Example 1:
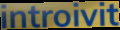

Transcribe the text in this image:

introivit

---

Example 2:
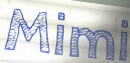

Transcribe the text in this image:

Mimi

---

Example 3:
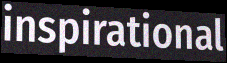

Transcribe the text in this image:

inspirational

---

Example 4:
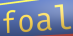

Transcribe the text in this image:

foal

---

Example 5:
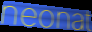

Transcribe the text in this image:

neonat